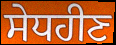
ਸੇਧਹੀਣ